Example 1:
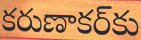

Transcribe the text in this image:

కరుణాకర్‌కు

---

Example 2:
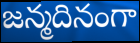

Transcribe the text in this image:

జన్మదినంగా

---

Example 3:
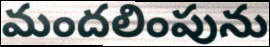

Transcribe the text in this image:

మందలింపును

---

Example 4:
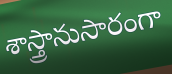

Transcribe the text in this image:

శాస్త్రానుసారంగా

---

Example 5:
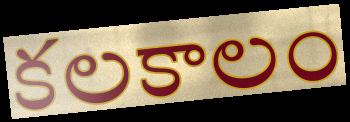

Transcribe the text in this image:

కలకాలం